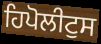
ਹਿਪੋਲੀਟੁਸ